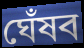
ঘেঁষব